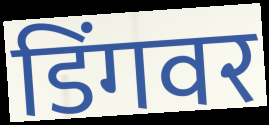
डिंगवर